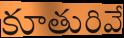
కూతురివే